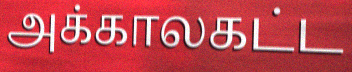
அக்காலகட்ட